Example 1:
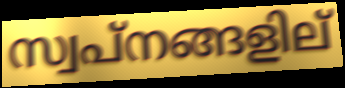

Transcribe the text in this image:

സ്വപ്നങ്ങളില്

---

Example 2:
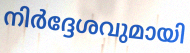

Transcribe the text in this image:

നിർദ്ദേശവുമായി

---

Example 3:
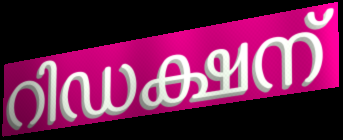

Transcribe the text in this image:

റിഡക്ഷന്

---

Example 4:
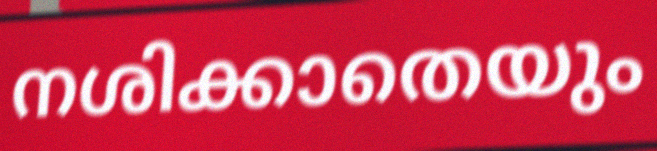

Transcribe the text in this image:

നശിക്കാതെയും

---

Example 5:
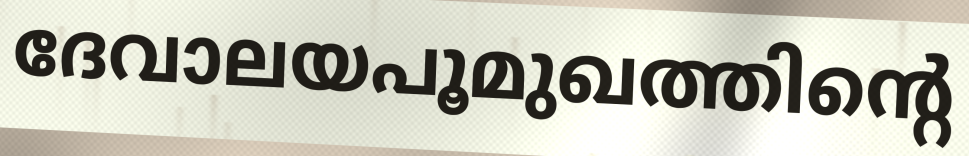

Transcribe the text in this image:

ദേവാലയപൂമുഖത്തിന്റെ